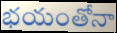
భయంతోనా